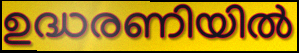
ഉദ്ധരണിയിൽ